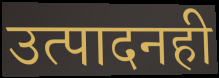
उत्पादनही